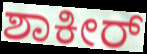
ಶಾಕೀರ್